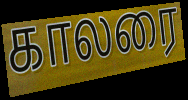
காலரை